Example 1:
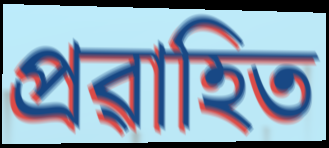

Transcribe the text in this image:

প্ৰৱাহিত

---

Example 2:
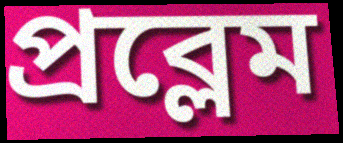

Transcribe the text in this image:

প্ৰব্লেম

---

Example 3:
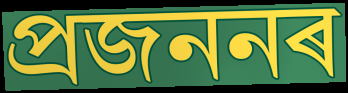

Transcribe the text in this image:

প্ৰজননৰ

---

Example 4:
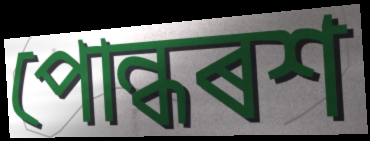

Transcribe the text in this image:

পোন্ধৰশ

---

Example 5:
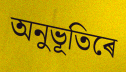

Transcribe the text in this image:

অনুভূতিৰে